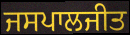
ਜਸਪਾਲਜੀਤ